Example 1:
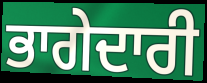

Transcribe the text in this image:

ਭਾਗੇਦਾਰੀ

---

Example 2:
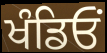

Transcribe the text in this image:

ਖੰਡਿਓਂ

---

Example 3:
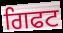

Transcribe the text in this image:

ਗਿਫਟ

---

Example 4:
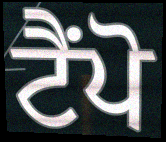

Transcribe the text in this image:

ਟੈਂਪੋ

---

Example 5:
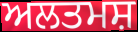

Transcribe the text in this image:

ਅਲਤਮਸ਼